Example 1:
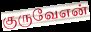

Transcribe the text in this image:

குருவேஎன்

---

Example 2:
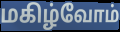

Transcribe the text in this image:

மகிழ்வோம்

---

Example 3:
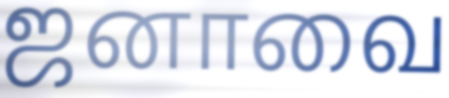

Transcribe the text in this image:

ஜனாவை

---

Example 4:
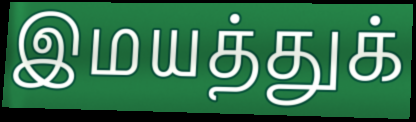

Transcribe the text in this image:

இமயத்துக்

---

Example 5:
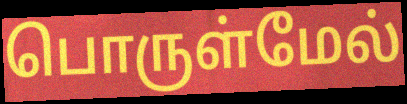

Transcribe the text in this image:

பொருள்மேல்